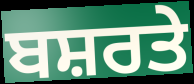
ਬਸ਼ਰਤੇ